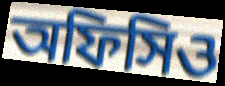
অফিসিও